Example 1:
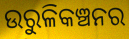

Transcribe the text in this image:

ଉରୁଳିକଞ୍ଚନର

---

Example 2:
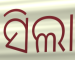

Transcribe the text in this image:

ସିଲା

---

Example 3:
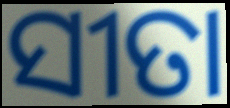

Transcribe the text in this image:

ସୀତା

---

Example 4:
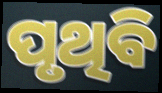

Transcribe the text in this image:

ପୃଥିବି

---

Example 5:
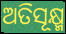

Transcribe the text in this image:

ଅତିସୂକ୍ଷ୍ମ